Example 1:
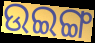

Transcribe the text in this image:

ଉଇଙ୍ଗ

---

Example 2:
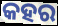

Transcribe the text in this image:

କହର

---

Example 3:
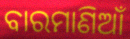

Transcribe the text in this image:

ବାରମାଣିଆଁ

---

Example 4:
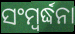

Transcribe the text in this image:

ସଂମ୍ବର୍ଦ୍ଧନା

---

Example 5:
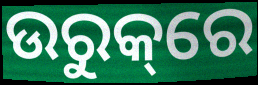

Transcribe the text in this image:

ଉରୁକ୍‌ରେ